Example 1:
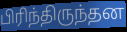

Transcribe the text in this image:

பிரிந்திருந்தன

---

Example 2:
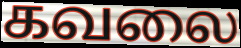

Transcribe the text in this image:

கவலை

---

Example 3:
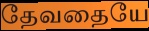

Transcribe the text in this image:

தேவதையே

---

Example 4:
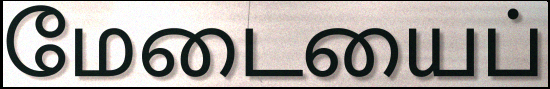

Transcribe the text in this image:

மேடையைப்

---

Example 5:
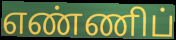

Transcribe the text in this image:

எண்ணிப்